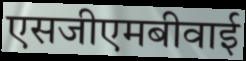
एसजीएमबीवाई